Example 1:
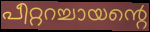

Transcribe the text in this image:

പീറ്ററച്ചായന്റെ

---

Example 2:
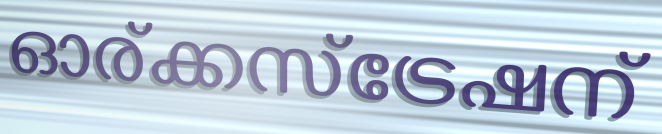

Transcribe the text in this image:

ഓര്ക്കസ്ട്രേഷന്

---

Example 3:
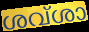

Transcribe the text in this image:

ശവ്ശാ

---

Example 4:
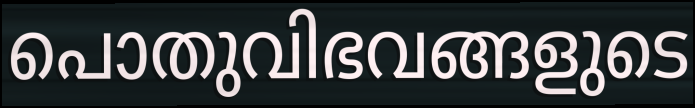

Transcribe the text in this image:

പൊതുവിഭവങ്ങളുടെ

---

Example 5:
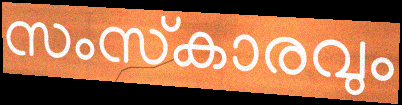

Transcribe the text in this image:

സംസ്‌കാരവും